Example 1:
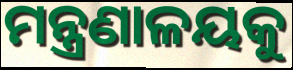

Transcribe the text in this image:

ମନ୍ତ୍ରଣାଳୟକୁ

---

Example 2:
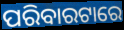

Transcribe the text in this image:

ପରିବାରଟାରେ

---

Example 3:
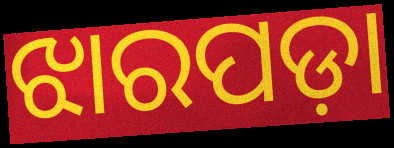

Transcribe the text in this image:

ଝାରପଡ଼ା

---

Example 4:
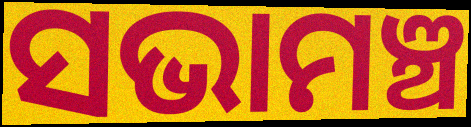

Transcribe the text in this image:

ସଭାମଞ୍ଚ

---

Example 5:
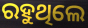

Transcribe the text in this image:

ରହୁଥିଲେ